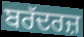
ਬਰੱਦਰਜ਼